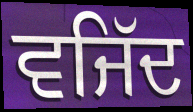
ਵਜਿੱਦ